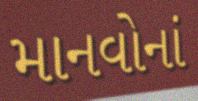
માનવોનાં